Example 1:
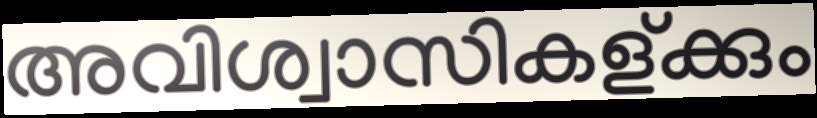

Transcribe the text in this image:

അവിശ്വാസികള്ക്കും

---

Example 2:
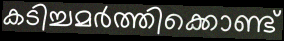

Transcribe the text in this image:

കടിച്ചമർത്തിക്കൊണ്ട്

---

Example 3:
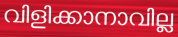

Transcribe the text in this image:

വിളിക്കാനാവില്ല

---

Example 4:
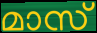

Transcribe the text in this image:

മാസ്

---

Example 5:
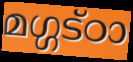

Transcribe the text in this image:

മഗ്ഗട്ഠാ